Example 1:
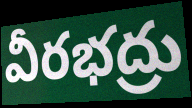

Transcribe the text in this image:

వీరభద్రు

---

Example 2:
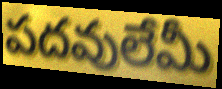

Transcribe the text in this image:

పదవులేమీ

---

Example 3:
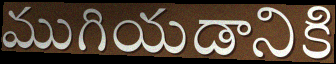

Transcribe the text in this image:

ముగియడానికి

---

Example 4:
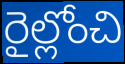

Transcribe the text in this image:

రైల్లోంచి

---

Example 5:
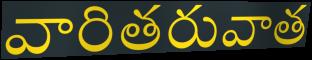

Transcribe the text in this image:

వారితరువాత